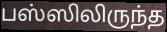
பஸ்ஸிலிருந்த